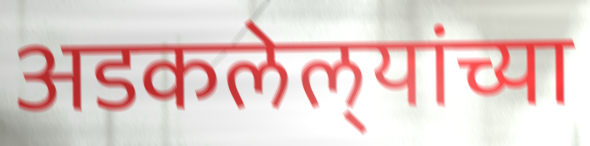
अडकलेल्यांच्या